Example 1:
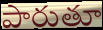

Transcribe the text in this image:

పారుతూ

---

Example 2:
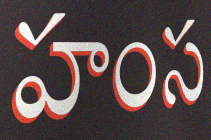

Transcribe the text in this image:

హంస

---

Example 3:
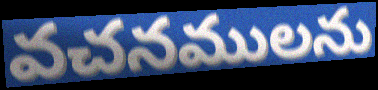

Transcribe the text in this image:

వచనములను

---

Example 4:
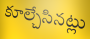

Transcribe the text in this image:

కూల్చేసినట్లు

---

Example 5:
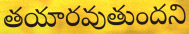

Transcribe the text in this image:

తయారవుతుందని